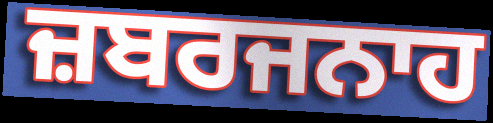
ਜ਼ਬਰਜਨਾਹ